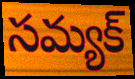
సమ్యక్